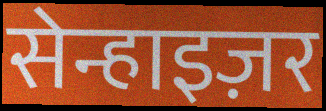
सेन्हाइज़र